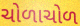
ચોળાચોળ